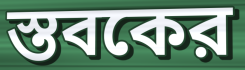
স্তবকের